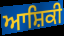
ਆਸ਼ਿਕੀ